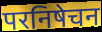
परनिषेचन